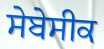
ਸੇਬੇਸੀਕ